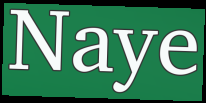
Naye